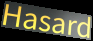
Hasard